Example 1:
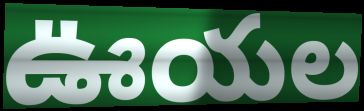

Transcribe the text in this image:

ఊయల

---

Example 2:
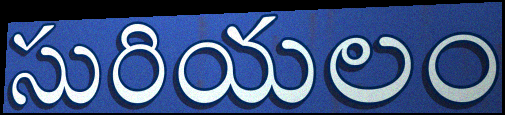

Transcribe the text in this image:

సురియలం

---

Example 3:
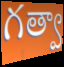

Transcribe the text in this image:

గత్వా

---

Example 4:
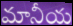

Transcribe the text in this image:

మానీయ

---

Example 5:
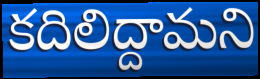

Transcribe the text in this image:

కదిలిద్దామని